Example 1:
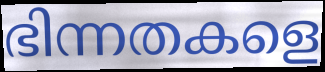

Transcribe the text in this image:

ഭിന്നതകളെ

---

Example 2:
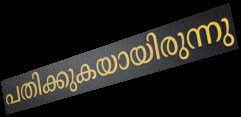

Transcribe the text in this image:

പതിക്കുകയായിരുന്നു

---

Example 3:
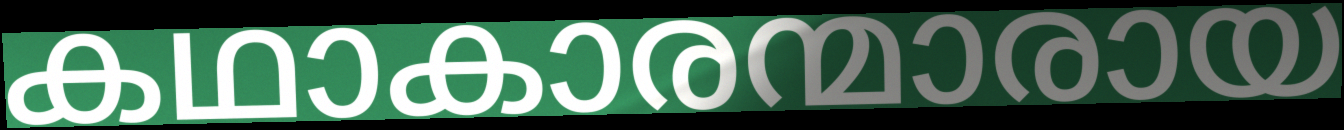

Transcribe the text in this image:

കഥാകാരന്മാരായ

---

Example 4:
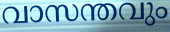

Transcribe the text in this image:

വാസന്തവും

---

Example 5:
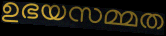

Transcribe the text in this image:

ഉഭയസമ്മത